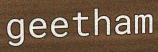
geetham